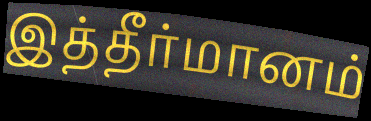
இத்தீர்மானம்